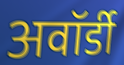
अवॉर्डी